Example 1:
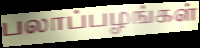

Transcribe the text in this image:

பலாப்பழங்கள்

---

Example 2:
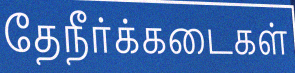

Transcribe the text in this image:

தேநீர்க்கடைகள்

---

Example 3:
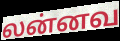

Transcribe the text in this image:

லன்னவ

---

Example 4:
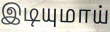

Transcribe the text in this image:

இடியுமாய்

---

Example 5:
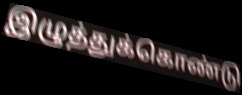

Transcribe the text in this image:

இழுத்துக்கொண்டு